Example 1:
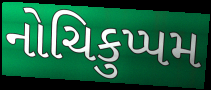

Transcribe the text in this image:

નોચિકુપ્પમ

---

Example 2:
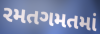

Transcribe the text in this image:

રમતગમતમાં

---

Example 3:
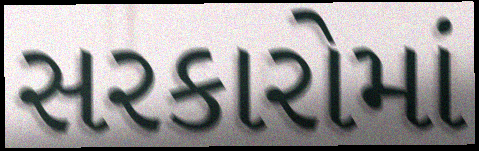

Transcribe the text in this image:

સરકારોમાં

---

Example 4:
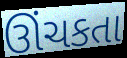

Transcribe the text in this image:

ઊંચકતા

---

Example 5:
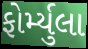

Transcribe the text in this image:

ફોર્મ્યુલા